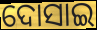
ଦୋସାଇ